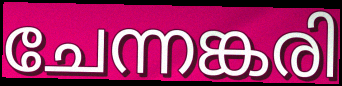
ചേന്നങ്കരി